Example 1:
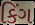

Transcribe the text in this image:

કિંગ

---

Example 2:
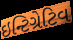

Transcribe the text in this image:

ઇન્ટિગ્રેટિવ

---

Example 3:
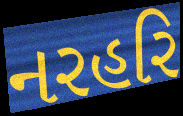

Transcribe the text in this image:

નરહરિ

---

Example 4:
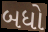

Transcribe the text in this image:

બધો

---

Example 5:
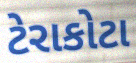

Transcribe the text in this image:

ટેરાકોટા